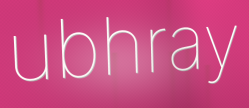
ubhray